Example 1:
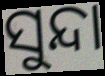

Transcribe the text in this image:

ସୁନ୍ଦା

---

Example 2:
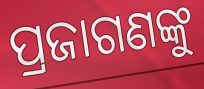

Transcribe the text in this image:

ପ୍ରଜାଗଣଙ୍କୁ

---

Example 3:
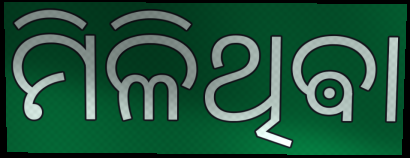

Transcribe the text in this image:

ମିଳିଥିଵା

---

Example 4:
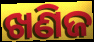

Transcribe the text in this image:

ଖଣିଜ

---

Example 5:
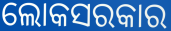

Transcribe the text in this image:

ଲୋକସରକାର